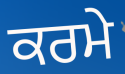
ਕਰਮੇ